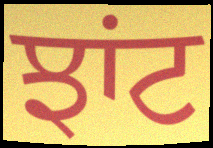
ਝਾਂਟ